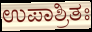
ಉಪಾಶ್ರಿತಃ